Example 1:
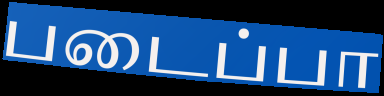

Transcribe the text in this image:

படைப்பா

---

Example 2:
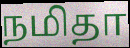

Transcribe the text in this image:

நமிதா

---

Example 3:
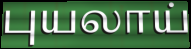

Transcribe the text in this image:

புயலாய்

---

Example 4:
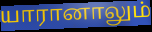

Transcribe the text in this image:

யாரானாலும்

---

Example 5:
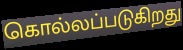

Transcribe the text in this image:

கொல்லப்படுகிறது